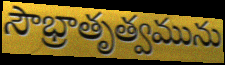
సౌభ్రాతృత్వమును